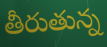
తీరుతున్న